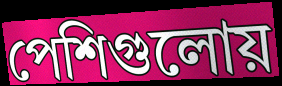
পেশিগুলোয়